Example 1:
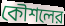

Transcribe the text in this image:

কৌশলের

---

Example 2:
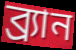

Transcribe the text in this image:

ব্র্যান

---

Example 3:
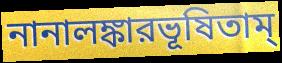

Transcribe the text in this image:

নানালঙ্কারভূষিতাম্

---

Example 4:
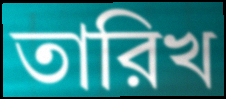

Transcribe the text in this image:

তারিখ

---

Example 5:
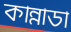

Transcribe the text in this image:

কান্নাডা